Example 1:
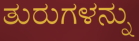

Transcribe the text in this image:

ತುರುಗಳನ್ನು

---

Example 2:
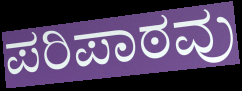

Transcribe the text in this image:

ಪರಿಪಾಠವು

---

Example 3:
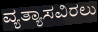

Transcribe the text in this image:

ವ್ಯತ್ಯಾಸವಿರಲು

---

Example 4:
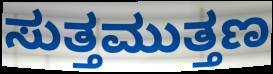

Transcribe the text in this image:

ಸುತ್ತಮುತ್ತಣ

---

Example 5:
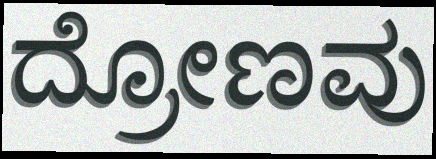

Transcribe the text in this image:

ದ್ರೋಣವು